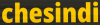
chesindi